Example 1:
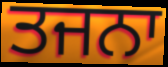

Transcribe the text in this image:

ਤਜਨਾ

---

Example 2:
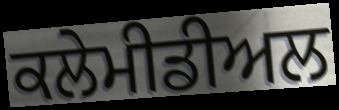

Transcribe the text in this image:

ਕਲੇਮੀਡੀਅਲ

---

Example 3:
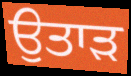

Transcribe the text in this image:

ਉਤਾਡ਼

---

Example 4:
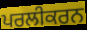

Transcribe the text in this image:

ਪਰਲੀਕਰਨ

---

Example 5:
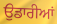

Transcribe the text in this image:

ਉਡਾਰੀਆਂ